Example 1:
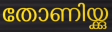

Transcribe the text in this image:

തോണിയ്ക്കു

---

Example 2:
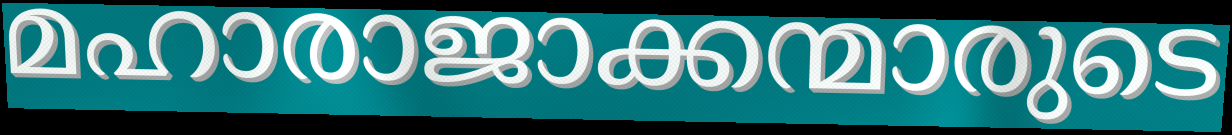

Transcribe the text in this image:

മഹാരാജാക്കന്മാരുടെ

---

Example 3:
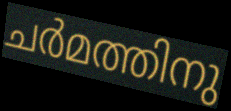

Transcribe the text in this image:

ചർമത്തിനു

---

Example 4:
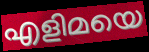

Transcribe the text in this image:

എളിമയെ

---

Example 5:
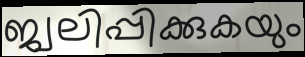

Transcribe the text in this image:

ജ്വലിപ്പിക്കുകയും